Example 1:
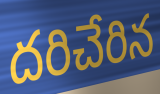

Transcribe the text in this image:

దరిచేరిన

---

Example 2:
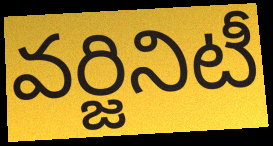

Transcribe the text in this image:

వర్జినిటీ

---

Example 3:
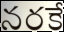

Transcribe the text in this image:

నరకే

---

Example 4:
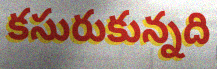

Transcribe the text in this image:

కసురుకున్నది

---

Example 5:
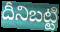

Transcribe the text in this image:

దీనిబట్టి